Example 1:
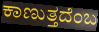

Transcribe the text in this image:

ಕಾಣುತ್ತದೆಂಬ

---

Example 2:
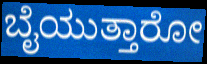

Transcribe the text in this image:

ಬೈಯುತ್ತಾರೋ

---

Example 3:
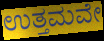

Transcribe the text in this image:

ಉತ್ತಮವೇ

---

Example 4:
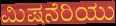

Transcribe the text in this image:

ಮಿಷನೆರಿಯು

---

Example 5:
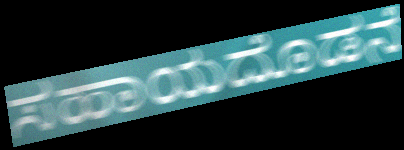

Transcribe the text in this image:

ಸಹಾಯದೊಡನೆ